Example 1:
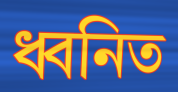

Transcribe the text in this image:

ধ্বনিত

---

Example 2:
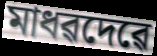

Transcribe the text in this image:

মাধৱদেৱে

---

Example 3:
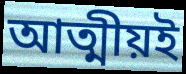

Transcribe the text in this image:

আত্মীয়ই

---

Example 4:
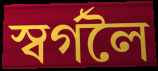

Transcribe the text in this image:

স্বৰ্গলৈ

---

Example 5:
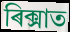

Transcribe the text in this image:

ৰিক্সাত